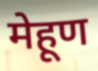
मेहूण